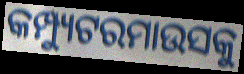
କମ୍ପ୍ୟୁଟରମାଉସକୁ